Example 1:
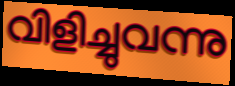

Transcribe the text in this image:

വിളിച്ചുവന്നു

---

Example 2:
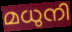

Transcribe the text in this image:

മധുനി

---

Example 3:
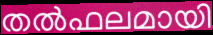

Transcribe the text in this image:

തൽഫലമായി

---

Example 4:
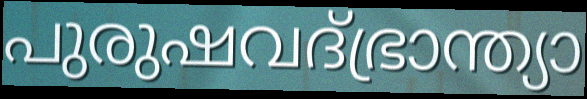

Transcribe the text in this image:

പുരുഷവദ്ഭ്രാന്ത്യാ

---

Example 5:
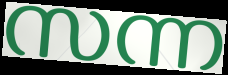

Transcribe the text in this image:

സന്ന